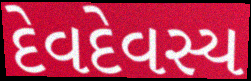
દેવદેવસ્ય